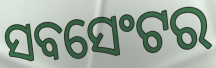
ସବସେଂଟର